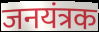
जनयंत्रक